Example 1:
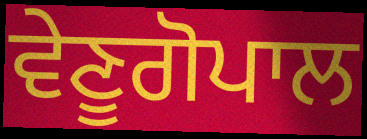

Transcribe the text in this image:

ਵੇਣੂਗੋਪਾਲ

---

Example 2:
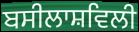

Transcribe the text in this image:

ਬਸੀਲਾਸ਼ਵਿਲੀ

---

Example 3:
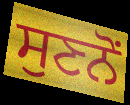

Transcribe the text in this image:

ਸੁਣਨੋਂ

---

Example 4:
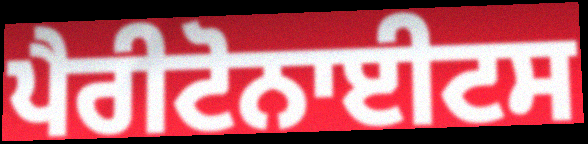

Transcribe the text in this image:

ਪੈਰੀਟੋਨਾਈਟਸ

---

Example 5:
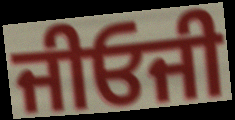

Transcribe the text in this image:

ਜੀਓਜੀ